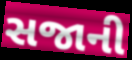
સજાની